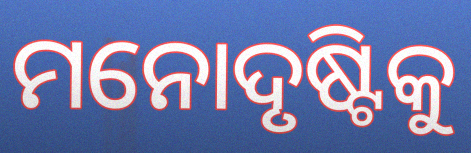
ମନୋଦୃଷ୍ଟିକୁ